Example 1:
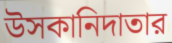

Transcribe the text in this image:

উসকানিদাতার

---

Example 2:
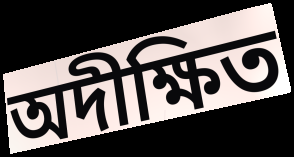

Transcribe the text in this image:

অদীক্ষিত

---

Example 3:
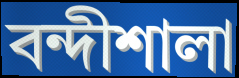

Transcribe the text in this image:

বন্দীশালা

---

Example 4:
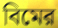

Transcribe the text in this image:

বিমের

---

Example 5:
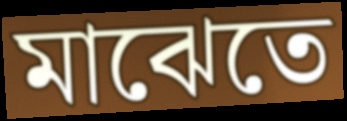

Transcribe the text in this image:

মাঝেতে